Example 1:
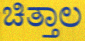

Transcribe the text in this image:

ಚಿತ್ತಾಲ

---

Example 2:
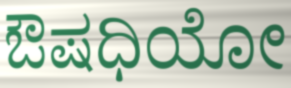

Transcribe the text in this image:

ಔಷಧಿಯೋ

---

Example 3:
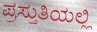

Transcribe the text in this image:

ಪ್ರಸ್ತುತಿಯಲ್ಲಿ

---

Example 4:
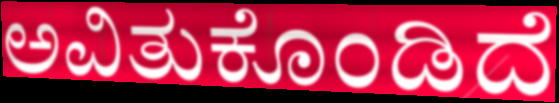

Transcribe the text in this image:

ಅವಿತುಕೊಂಡಿದೆ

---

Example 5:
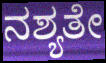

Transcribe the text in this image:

ನಶ್ಯತೇ